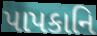
પાપકાનિ